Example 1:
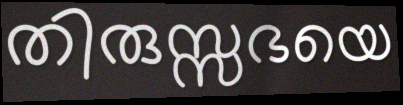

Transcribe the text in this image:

തിരുസ്സഭയെ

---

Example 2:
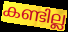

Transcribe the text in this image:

കണ്ടില്ല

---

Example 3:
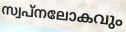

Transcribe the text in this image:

സ്വപ്നലോകവും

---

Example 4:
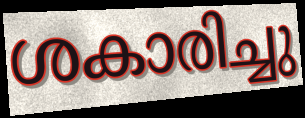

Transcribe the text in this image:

ശകാരിച്ചു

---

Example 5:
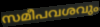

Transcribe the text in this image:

സമീപവശവും